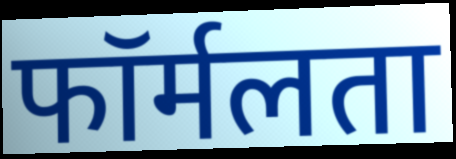
फॉर्मलता